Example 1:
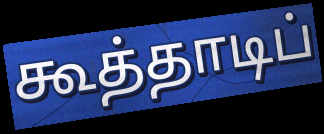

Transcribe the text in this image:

கூத்தாடிப்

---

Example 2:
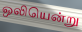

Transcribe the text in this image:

ஒலியென்று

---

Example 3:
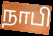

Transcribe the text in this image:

நாபி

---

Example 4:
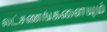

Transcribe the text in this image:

லட்சணங்களையும்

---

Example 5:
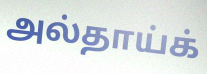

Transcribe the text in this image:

அல்தாய்க்